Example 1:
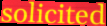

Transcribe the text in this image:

solicited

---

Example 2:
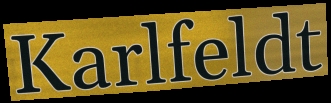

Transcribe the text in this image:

Karlfeldt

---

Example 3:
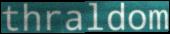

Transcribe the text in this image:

thraldom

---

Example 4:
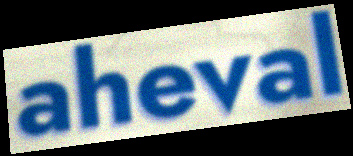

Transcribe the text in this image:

aheval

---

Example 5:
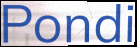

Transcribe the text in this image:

Pondi